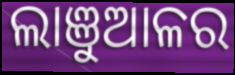
ଲାଞୁଆଳର